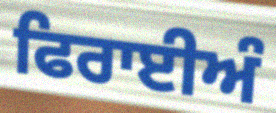
ਫਿਰਾਈਅੰ